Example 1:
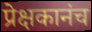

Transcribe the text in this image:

प्रेक्षकानंच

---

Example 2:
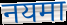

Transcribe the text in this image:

नयमा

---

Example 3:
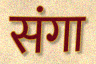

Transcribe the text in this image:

संगा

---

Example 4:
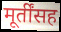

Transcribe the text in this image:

मूर्तींसह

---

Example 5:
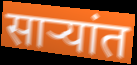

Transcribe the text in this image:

साऱ्यांत